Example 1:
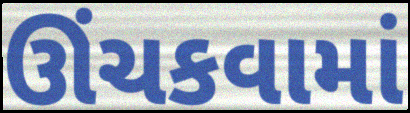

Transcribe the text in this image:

ઊંચકવામાં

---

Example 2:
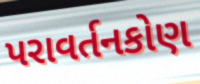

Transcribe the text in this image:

પરાવર્તનકોણ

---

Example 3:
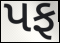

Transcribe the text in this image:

પફ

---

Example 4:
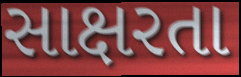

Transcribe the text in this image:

સાક્ષરતા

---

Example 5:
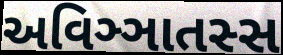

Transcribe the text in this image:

અવિઞ્ઞાતસ્સ